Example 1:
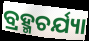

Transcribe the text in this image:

ବ୍ରହ୍ମଚର୍ଯ୍ୟା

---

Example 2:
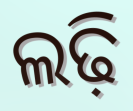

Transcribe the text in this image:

ଲଢ଼ି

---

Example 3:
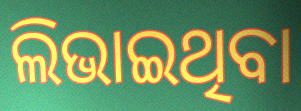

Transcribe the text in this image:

ଲିଭାଇଥିବା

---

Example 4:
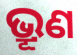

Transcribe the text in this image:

ଭ୍ରୂଣ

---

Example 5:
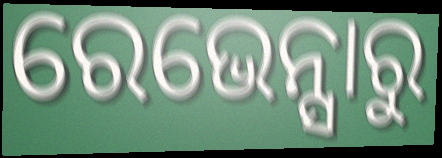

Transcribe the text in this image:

ରେଭେନ୍ସାରୁ